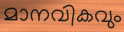
മാനവികവും